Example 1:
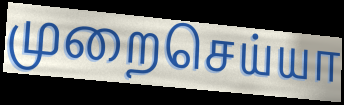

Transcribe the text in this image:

முறைசெய்யா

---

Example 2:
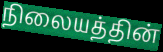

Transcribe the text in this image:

நிலையத்தின்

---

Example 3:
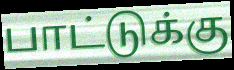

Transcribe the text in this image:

பாட்டுக்கு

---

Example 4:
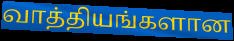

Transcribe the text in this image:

வாத்தியங்களான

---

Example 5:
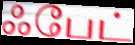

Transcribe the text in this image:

ஃபேட்